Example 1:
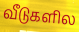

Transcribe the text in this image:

வீடுகளில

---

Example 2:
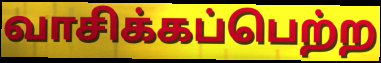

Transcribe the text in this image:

வாசிக்கப்பெற்ற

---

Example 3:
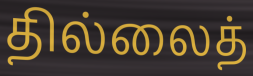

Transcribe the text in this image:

தில்லைத்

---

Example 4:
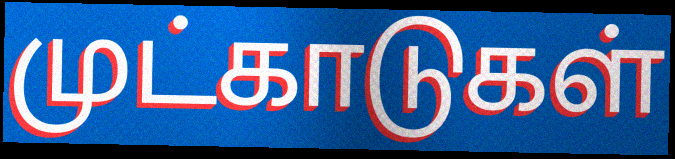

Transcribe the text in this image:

முட்காடுகள்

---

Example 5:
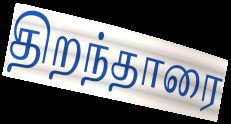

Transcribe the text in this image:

திறந்தாரை